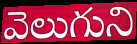
వెలుగుని